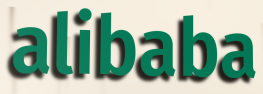
alibaba